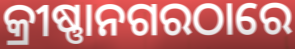
କ୍ରୀଷ୍ଣାନଗରଠାରେ